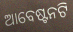
ଆବେଷ୍ଟନଟି